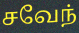
சவேந்